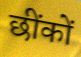
छींकों